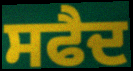
ਸਫੈਦ